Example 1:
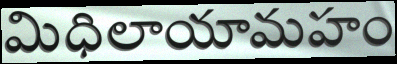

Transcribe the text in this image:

మిధిలాయామహం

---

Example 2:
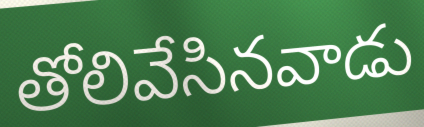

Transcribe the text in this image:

తోలివేసినవాడు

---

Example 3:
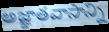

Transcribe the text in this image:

అజ్ఞాతవాసాన్ని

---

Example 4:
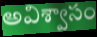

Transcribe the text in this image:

అవిశ్వాసం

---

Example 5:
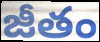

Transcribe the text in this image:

జీతం